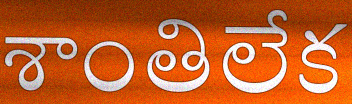
శాంతిలేక